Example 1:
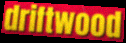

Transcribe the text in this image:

driftwood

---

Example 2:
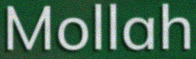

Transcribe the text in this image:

Mollah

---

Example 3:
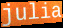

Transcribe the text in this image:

julia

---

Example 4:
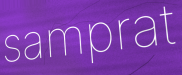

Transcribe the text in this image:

samprat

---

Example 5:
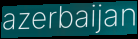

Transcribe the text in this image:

azerbaijan